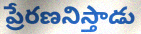
ప్రేరణనిస్తాడు